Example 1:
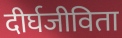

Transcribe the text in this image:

दीर्घजीविता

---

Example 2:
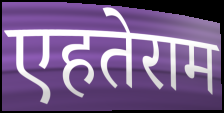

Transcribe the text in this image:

एहतेराम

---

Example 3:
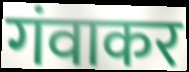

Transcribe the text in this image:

गंवाकर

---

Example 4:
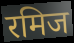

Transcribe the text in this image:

रमिज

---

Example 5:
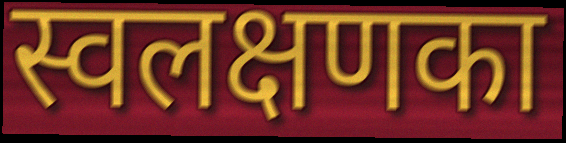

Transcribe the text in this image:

स्वलक्षणका